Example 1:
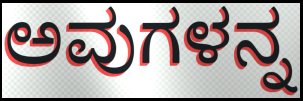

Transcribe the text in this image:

ಅವುಗಳನ್ನ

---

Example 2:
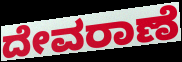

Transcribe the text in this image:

ದೇವರಾಣೆ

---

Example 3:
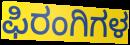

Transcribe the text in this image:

ಫಿರಂಗಿಗಳ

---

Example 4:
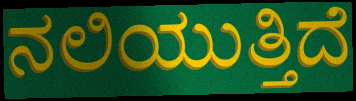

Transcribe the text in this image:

ನಲಿಯುತ್ತಿದೆ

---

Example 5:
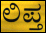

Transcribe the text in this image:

ಲಿಪ್ತ